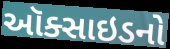
ઑક્સાઇડનો